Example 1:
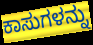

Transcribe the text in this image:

ಕಾಸುಗಳನ್ನು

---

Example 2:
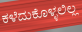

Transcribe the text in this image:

ಕಳೆದುಕೊಳ್ಳಲಿಲ್ಲ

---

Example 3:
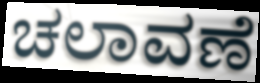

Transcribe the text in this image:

ಚಲಾವಣೆ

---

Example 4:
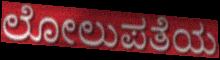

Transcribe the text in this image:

ಲೋಲುಪತೆಯ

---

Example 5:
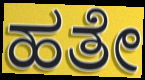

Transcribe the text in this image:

ಹತೇ